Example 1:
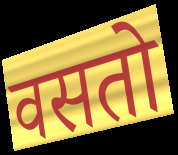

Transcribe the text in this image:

वसतो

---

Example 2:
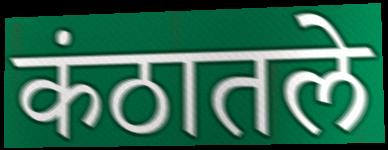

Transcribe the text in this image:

कंठातले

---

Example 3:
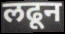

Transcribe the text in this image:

लढून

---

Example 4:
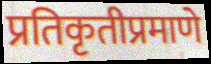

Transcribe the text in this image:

प्रतिकृतीप्रमाणे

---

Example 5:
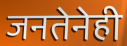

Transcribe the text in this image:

जनतेनेही